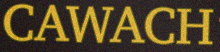
CAWACH